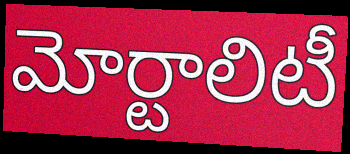
మోర్టాలిటీ